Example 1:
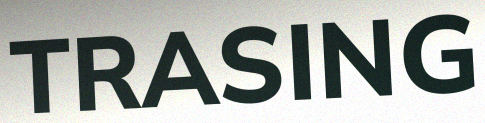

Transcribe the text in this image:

TRASING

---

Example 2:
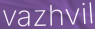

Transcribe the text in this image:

vazhvil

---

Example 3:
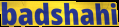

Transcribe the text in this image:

badshahi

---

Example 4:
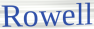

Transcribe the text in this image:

Rowell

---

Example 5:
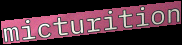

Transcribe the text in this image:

micturition